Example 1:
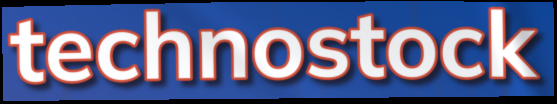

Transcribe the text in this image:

technostock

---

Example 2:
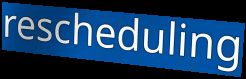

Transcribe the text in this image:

rescheduling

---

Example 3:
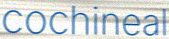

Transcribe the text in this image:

cochineal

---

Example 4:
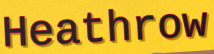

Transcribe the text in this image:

Heathrow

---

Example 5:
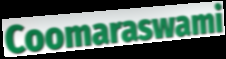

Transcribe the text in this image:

Coomaraswami